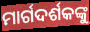
ମାର୍ଗଦର୍ଶକଙ୍କୁ